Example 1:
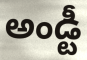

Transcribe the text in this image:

అండ్టీ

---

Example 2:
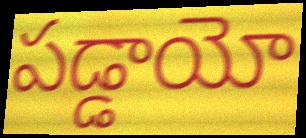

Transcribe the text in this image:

పడ్డాయో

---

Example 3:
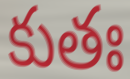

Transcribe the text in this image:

కుతః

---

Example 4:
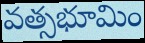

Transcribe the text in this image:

వత్సభూమిం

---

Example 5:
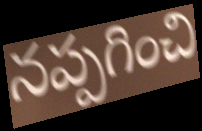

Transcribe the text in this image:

నప్పగించి